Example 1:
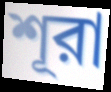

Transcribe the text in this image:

শূরা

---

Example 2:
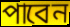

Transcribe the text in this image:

পাবেন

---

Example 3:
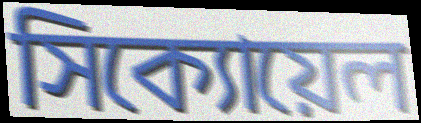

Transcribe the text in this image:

সিক্যোয়েল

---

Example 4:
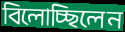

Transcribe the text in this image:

বিলোচ্ছিলেন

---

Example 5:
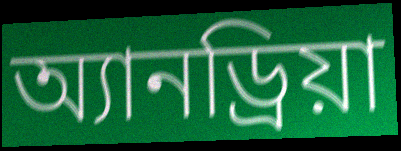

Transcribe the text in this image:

অ্যানড্রিয়া